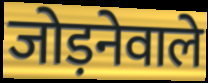
जोड़नेवाले